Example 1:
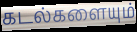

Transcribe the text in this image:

கடல்களையும்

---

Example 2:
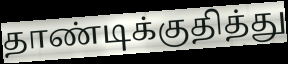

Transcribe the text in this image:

தாண்டிக்குதித்து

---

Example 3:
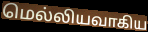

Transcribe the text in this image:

மெல்லியவாகிய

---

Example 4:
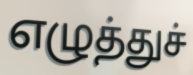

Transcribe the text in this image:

எழுத்துச்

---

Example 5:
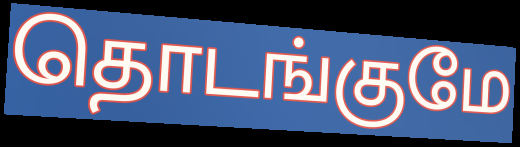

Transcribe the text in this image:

தொடங்குமே